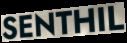
SENTHIL